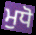
ਮੁਧੋ